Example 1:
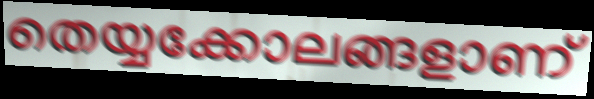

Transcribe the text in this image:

തെയ്യക്കോലങ്ങളാണ്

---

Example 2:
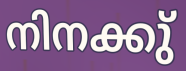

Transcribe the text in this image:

നിനക്കു്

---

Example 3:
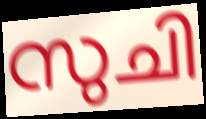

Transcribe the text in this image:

സുചി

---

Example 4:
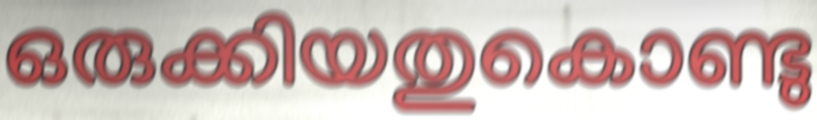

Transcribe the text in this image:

ഒരുക്കിയതുകൊണ്ടു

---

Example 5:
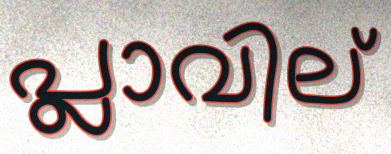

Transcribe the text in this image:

പ്ലാവില്